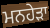
ਮਨਹੇੜਾ